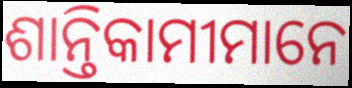
ଶାନ୍ତିକାମୀମାନେ